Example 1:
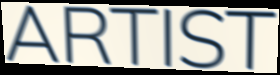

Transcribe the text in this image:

ARTIST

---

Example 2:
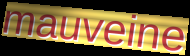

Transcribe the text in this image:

mauveine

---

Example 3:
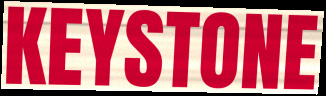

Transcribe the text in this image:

KEYSTONE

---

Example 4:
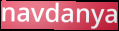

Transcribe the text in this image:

navdanya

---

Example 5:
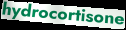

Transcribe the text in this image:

hydrocortisone